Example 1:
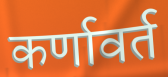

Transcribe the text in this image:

कर्णावर्त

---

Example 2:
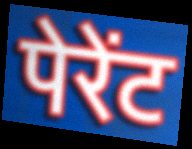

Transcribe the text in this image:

पेरेंट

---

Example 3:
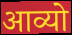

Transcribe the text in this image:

आव्यो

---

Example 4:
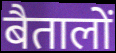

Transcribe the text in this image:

बैतालों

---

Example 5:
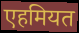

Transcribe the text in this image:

एहमियत